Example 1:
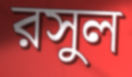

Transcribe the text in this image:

রসুল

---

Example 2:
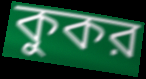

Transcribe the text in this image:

কুকর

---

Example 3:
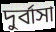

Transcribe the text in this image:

দুর্বাসা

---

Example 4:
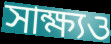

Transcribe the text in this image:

সাক্ষ্যও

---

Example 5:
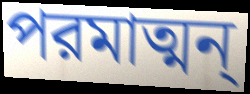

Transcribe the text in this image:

পরমাত্মন্